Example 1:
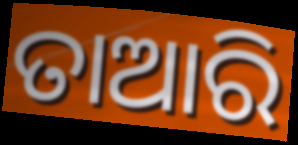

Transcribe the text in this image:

ତାଆରି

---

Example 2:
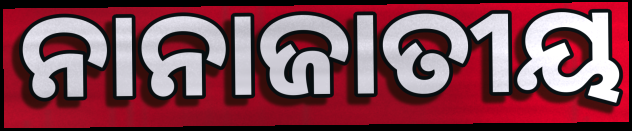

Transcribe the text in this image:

ନାନାଜାତୀୟ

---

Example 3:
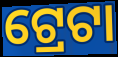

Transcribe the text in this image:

ଟ୍ରେଟା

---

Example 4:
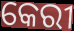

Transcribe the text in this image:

କେରୀ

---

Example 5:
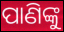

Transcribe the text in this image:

ପାଣିଙ୍କୁ